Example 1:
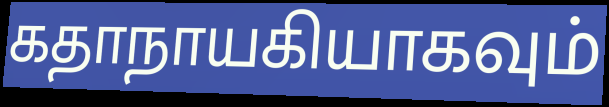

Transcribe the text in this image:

கதாநாயகியாகவும்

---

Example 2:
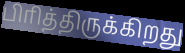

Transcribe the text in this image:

பிரித்திருக்கிறது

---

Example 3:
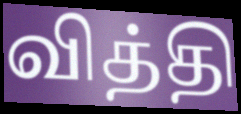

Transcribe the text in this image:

வித்தி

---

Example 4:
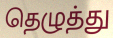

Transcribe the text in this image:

தெழுத்து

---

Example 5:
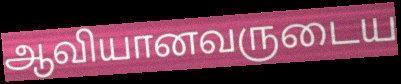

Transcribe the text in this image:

ஆவியானவருடைய